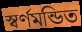
স্বর্ণমন্ডিত